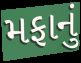
મફાનું